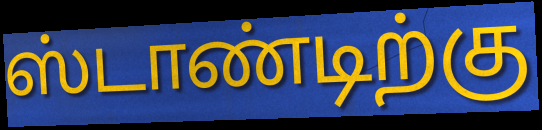
ஸ்டாண்டிற்கு